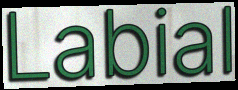
Labial